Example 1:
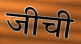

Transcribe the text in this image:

जीची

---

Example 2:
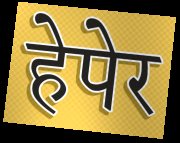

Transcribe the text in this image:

हेपेर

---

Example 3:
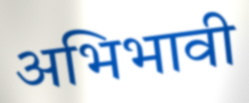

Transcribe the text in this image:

अभिभावी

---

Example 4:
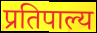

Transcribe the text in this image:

प्रतिपाल्य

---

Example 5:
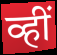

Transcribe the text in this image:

व्हीं